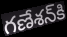
గణేశన్‍కి